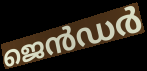
ജെൻഡർ